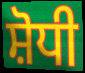
ਸ਼ੋਧੀ